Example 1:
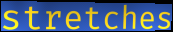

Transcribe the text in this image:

stretches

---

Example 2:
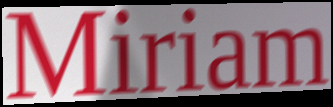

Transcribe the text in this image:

Miriam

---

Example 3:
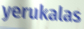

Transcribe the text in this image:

yerukalas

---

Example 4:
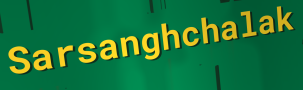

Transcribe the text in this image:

Sarsanghchalak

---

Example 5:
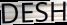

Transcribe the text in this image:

DESH